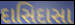
દાસિદાસા